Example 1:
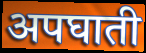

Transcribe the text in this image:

अपघाती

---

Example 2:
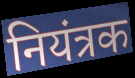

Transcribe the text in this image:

नियंत्रक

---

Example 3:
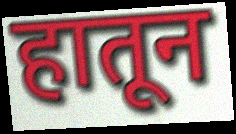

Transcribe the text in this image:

हातून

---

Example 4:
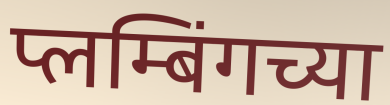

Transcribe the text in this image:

प्लम्बिंगच्या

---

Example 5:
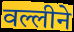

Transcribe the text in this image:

वल्लीने